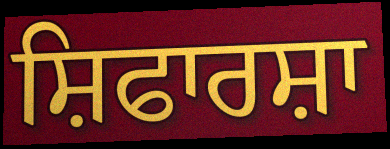
ਸ਼ਿਫਾਰਸ਼ਾ